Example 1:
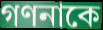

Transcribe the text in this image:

গণনাকে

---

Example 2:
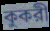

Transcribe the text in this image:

কুকরী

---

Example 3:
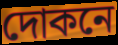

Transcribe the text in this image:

দোকনে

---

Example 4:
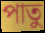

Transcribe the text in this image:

পাতু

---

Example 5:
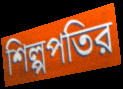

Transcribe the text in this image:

শিল্পপতির